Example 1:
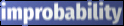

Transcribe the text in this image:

improbability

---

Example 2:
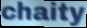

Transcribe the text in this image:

chaity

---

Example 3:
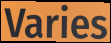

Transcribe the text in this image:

Varies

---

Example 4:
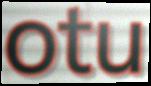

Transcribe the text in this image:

otu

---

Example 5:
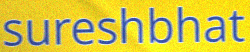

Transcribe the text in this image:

sureshbhat